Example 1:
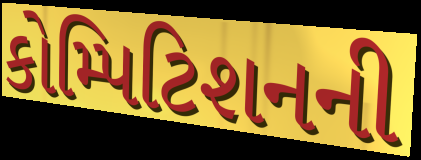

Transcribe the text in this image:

કોમ્પિટિશનની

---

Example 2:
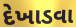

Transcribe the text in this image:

દેખાડવા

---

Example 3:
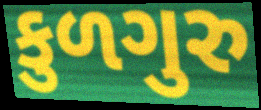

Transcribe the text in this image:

કુળગુરુ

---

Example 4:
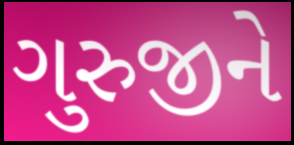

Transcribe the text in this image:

ગુરુજીને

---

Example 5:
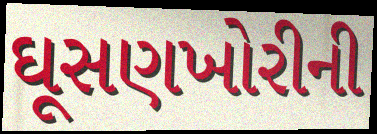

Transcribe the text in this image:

ઘૂસણખોરીની